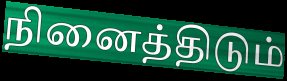
நினைத்திடும்